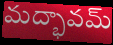
మద్భావమ్